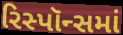
રિસ્પૉન્સમાં